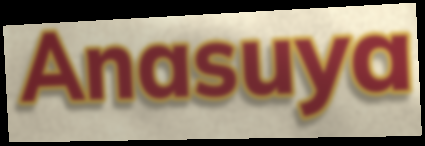
Anasuya